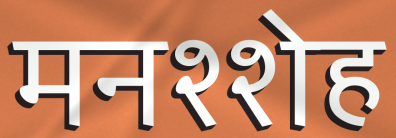
मनश्शेह